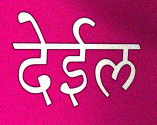
देईल